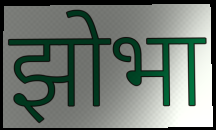
झोभा